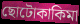
ছোটোকাকিমা